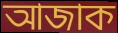
আজাক